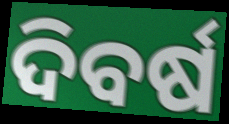
ଦିବର୍ଷ